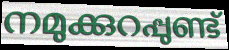
നമുക്കുറപ്പുണ്ട്